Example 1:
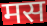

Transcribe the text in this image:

मस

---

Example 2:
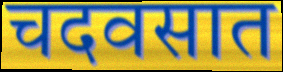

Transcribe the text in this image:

चदवसात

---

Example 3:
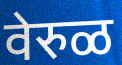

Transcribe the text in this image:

वेरुळ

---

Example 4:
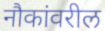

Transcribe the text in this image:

नौकांवरील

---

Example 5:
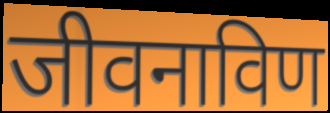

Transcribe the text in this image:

जीवनाविण